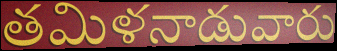
తమిళనాడువారు